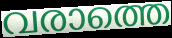
വരാത്തെ